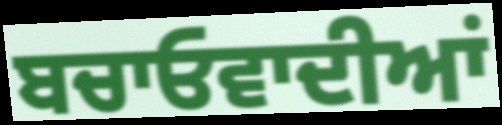
ਬਚਾਓਵਾਦੀਆਂ